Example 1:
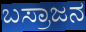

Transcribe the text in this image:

ಬಸ್ರಾಜನ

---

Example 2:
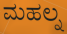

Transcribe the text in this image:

ಮಹಲ್ನ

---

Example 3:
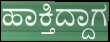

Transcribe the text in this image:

ಹಾಕ್ತಿದ್ದಾಗ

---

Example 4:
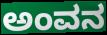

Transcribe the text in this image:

ಅಂವನ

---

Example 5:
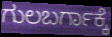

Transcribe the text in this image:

ಗುಲಬರ್ಗಾಕ್ಕೆ